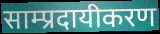
साम्प्रदायीकरण